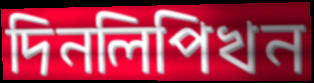
দিনলিপিখন